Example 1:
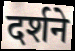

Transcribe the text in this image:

दर्शने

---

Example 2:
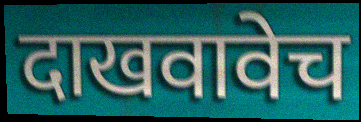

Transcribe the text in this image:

दाखवावेच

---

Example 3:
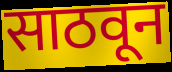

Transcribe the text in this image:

साठवून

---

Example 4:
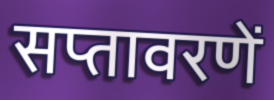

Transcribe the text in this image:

सप्तावरणें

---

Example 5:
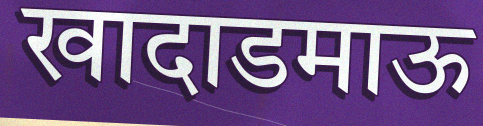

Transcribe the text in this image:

खादाडमाऊ